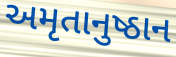
અમૃતાનુષ્ઠાન